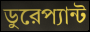
ডুরেপ্যান্ট